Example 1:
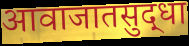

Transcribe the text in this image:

आवाजातसुद्धा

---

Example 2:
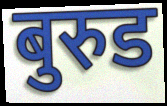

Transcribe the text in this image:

बुरुड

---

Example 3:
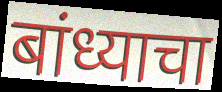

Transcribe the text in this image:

बांध्याचा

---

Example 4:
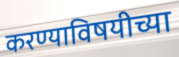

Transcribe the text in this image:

करण्याविषयीच्या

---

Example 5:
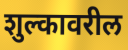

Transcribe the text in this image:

शुल्कावरील